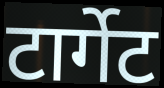
टार्गेट